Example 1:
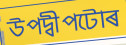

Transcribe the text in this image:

উপদ্বীপটোৰ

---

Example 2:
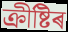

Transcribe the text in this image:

ক্ৰীষ্টিৰ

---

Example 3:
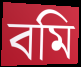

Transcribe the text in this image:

বমি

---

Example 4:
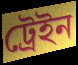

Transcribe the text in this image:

ট্ৰেইন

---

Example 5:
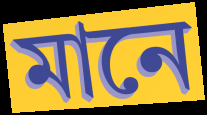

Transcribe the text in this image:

মানে